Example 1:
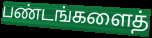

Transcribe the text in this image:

பண்டங்களைத்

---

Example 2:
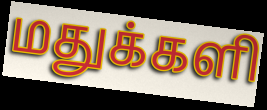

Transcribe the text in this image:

மதுக்களி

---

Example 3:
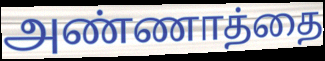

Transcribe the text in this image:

அண்ணாத்தை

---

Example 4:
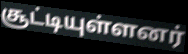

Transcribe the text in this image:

சூட்டியுள்ளனர்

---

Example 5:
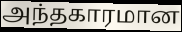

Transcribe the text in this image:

அந்தகாரமான